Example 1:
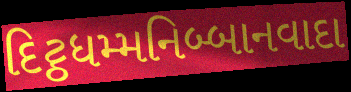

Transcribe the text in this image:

દિટ્ઠધમ્મનિબ્બાનવાદા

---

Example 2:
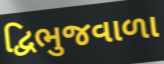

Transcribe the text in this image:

દ્વિભુજવાળા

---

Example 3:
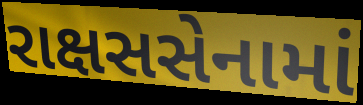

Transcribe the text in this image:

રાક્ષસસેનામાં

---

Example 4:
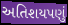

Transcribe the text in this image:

અતિશયપણું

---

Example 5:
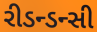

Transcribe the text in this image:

રીડન્ડન્સી